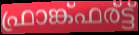
ഫ്രാങ്ക്ഫര്ട്ട്